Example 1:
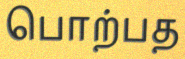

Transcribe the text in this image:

பொற்பத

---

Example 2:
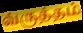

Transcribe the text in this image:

வ்ருத்தம்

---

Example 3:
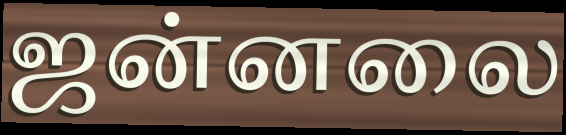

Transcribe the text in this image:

ஜன்னலை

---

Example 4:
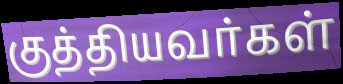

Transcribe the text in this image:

குத்தியவர்கள்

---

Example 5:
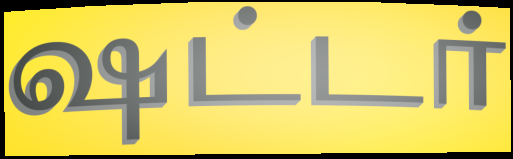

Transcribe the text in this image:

ஷட்டர்